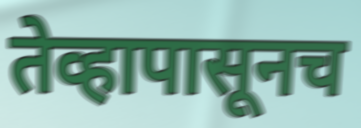
तेव्हापासूनच